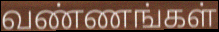
வண்ணங்கள்